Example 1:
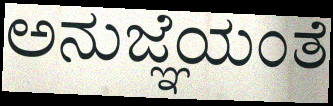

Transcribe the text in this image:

ಅನುಜ್ಞೆಯಂತೆ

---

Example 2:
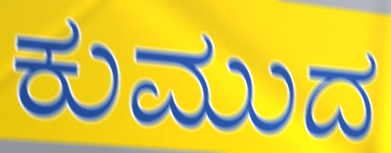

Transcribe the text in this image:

ಕುಮುದ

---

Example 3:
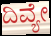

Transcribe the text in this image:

ದಿವ್ಯೇ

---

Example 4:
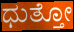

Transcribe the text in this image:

ಧುತ್ತೋ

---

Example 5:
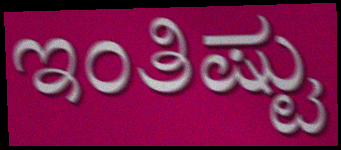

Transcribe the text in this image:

ಇಂತಿಷ್ಟು